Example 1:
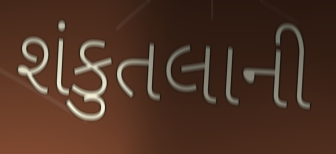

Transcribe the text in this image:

શંકુતલાની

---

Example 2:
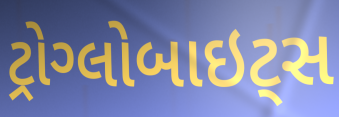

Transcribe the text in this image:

ટ્રોગ્લોબાઇટ્સ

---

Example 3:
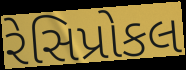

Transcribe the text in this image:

રેસિપ્રોકલ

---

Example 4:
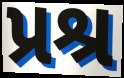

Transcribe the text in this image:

પ્રશ્ર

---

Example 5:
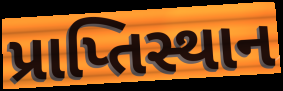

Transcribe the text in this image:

પ્રાપ્તિસ્થાન